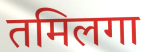
तमिलगा